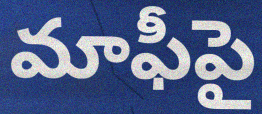
మాఫీపై